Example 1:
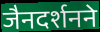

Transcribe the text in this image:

जैनदर्शनने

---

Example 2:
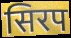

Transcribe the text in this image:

सिरप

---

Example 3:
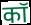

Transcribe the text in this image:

कॉ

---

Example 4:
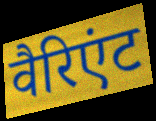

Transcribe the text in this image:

वैरिएंट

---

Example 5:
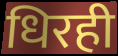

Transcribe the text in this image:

धिरही